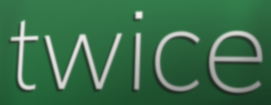
twice